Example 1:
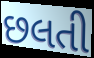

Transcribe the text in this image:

છલતી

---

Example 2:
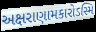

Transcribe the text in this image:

અક્ષરાણામકારોઽસ્મિ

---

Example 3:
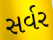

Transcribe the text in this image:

સર્વર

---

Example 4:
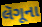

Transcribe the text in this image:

લૅગૂના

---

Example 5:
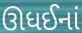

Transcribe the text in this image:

ઊધઈનાં